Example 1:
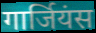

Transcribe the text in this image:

गार्जियंस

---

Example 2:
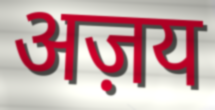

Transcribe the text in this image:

अज़य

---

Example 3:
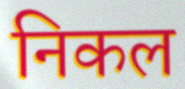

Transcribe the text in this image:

निकल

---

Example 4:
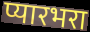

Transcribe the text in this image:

प्यारभरा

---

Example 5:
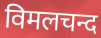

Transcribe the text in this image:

विमलचन्द